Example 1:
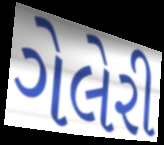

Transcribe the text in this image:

ગેલેરી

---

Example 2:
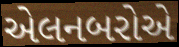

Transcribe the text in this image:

એલનબરોએ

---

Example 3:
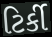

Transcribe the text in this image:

ટિર્કી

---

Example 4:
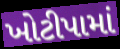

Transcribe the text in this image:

ખોટીપામાં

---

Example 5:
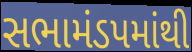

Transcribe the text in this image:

સભામંડપમાંથી